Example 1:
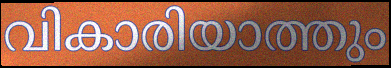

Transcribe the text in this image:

വികാരിയാത്തും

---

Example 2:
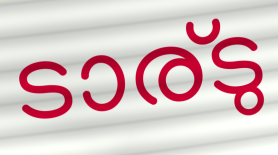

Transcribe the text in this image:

ടാര്ടു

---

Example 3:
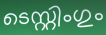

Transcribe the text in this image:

ടെസ്റ്റിംഗും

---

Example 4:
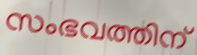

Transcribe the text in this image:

സംഭവത്തിന്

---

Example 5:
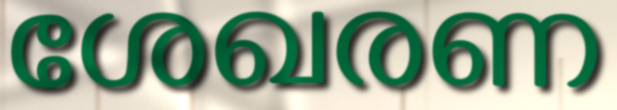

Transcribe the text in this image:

ശേഖരണ